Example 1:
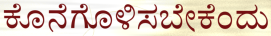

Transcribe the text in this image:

ಕೊನೆಗೊಳಿಸಬೇಕೆಂದು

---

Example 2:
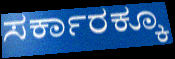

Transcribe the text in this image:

ಸರ್ಕಾರಕ್ಕೂ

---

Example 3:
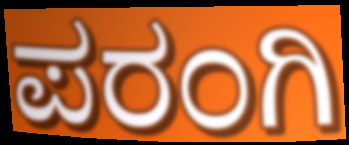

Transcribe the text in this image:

ಪರಂಗಿ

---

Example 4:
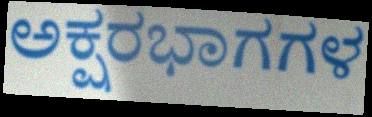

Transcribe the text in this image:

ಅಕ್ಷರಭಾಗಗಳ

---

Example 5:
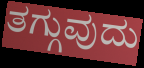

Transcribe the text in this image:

ತಗ್ಗುವುದು